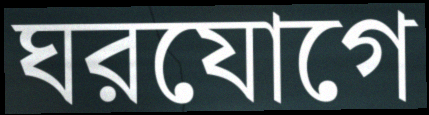
ঘরযোগে